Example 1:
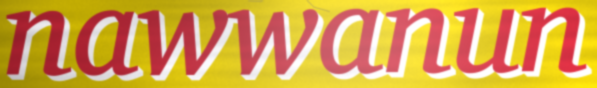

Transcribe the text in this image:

nawwanun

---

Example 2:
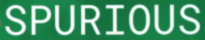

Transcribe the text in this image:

SPURIOUS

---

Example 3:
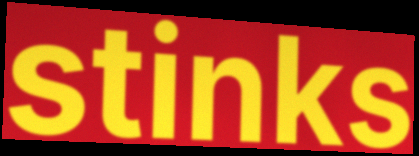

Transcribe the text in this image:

stinks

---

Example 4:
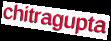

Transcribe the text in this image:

chitragupta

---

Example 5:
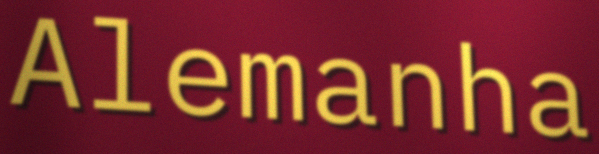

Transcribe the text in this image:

Alemanha